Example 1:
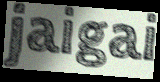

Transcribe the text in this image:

jaigai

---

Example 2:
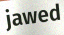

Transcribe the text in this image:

jawed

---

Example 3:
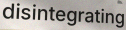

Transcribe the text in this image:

disintegrating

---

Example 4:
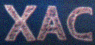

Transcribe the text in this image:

XAC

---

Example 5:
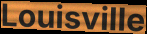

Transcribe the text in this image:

Louisville